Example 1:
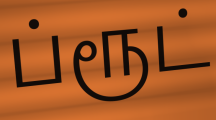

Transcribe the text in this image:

ப்ரூட்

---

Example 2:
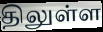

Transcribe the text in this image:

திலுள்ள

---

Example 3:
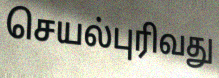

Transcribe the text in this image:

செயல்புரிவது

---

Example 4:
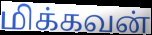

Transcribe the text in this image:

மிக்கவன்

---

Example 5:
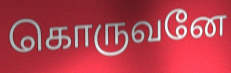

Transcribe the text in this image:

கொருவனே